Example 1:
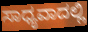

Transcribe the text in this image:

ಸಾಧ್ಯವಾದಲ್ಲಿ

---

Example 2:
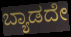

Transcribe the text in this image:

ಬ್ಯಾಡದೇ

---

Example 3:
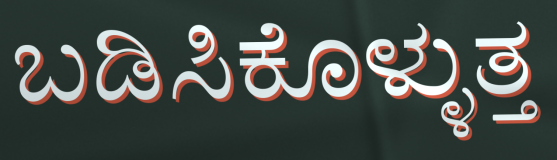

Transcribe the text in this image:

ಬಡಿಸಿಕೊಳ್ಳುತ್ತ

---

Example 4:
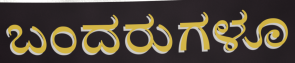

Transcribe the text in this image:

ಬಂದರುಗಳೂ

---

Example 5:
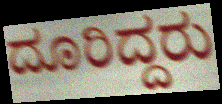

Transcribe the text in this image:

ದೂರಿದ್ದರು